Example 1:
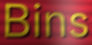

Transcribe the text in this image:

Bins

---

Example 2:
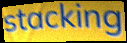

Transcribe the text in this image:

stacking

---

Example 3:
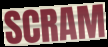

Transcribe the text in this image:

SCRAM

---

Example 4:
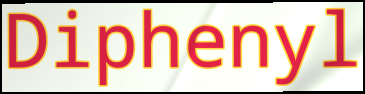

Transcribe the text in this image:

Diphenyl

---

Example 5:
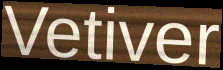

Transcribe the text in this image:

Vetiver